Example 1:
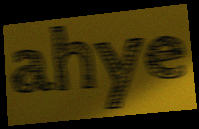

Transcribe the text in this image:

ahye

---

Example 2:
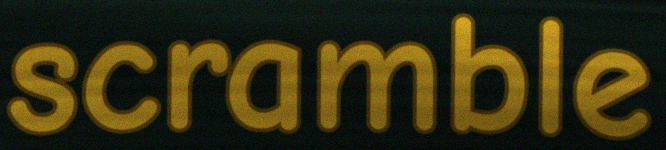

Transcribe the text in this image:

scramble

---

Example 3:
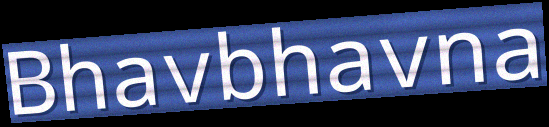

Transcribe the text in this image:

Bhavbhavna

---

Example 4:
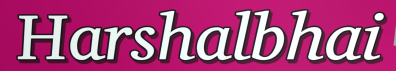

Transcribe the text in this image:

Harshalbhai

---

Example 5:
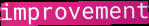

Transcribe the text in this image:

improvement